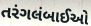
તરંગલંબાઈઓ